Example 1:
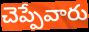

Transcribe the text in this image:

చెప్పేవారు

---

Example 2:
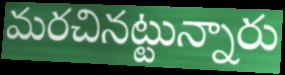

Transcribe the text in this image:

మరచినట్టున్నారు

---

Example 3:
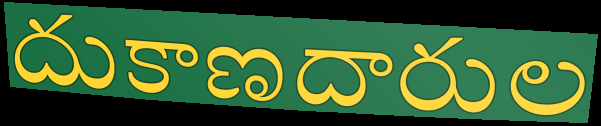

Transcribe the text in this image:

దుకాణదారుల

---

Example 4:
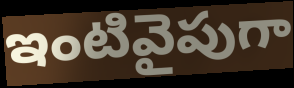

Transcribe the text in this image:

ఇంటివైపుగా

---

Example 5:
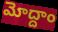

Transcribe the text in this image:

మోద్దాం